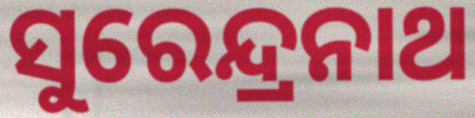
ସୁରେନ୍ଦ୍ରନାଥ